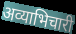
अव्याभिचारी